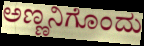
ಅಣ್ಣನಿಗೊಂದು